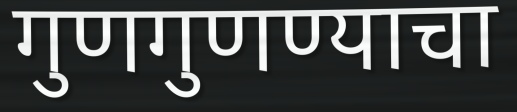
गुणगुणण्याचा